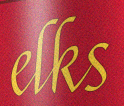
elks